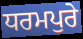
ਧਰਮਪੁਰੇ